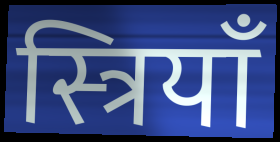
स्‍त्रियाँ